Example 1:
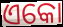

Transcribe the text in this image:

ଏକୋ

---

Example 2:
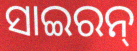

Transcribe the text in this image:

ସାଇରନ୍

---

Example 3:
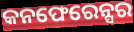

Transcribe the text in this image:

କନଫେରେନ୍ସର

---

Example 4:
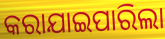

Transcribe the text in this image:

କରାଯାଇପାରିଲା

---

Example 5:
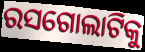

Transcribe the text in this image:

ରସଗୋଲାଟିକୁ